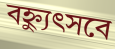
বহ্ন্যুৎসবে